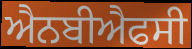
ਐਨਬੀਐਫਸੀ